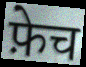
फ़ेच